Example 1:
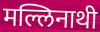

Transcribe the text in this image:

मल्लिनाथी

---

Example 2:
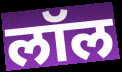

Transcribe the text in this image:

लॉल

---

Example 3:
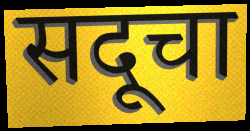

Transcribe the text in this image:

सदूचा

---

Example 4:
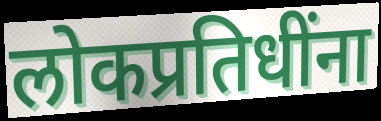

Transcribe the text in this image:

लोकप्रतिधींना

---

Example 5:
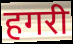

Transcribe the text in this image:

हगरी